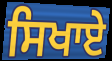
ਸਿਖਾਏੇ